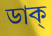
ডাক্